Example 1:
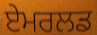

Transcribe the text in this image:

ਏਮਰਲਡ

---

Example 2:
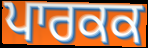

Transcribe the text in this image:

ਪਾਰਕਕ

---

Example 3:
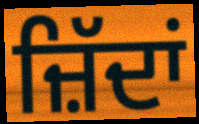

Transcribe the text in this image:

ਜ਼ਿੱਦਾਂ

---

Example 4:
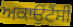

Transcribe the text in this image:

ਅਕਾਉਂਟੈਂਸੀ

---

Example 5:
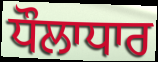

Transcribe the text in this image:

ਧੌਲਾਧਾਰ